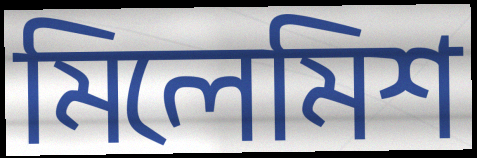
মিলেমিশ